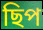
ছিপ